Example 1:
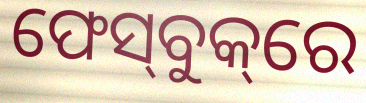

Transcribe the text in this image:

ଫେସ୍‌ବୁକ୍‌ରେ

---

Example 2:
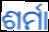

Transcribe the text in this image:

ଶର୍ମା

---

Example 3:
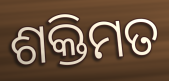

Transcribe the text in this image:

ଶକ୍ତିମତ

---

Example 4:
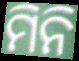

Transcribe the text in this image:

ମିନି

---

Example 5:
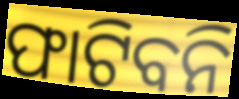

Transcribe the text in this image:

ଫାଟିବନି